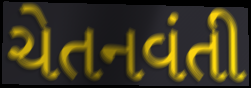
ચેતનવંતી